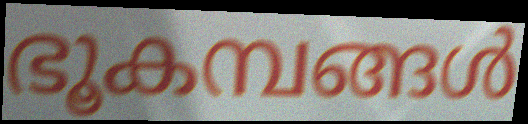
ഭൂകമ്പങ്ങൾ